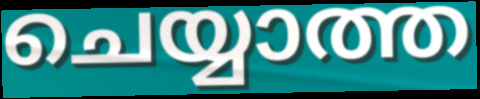
ചെയ്യാത്ത